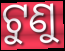
ଟୁଣୁ